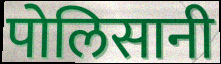
पोलिसानी